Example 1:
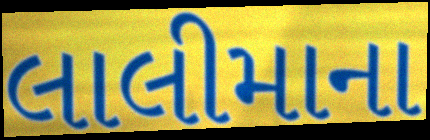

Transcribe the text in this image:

લાલીમાના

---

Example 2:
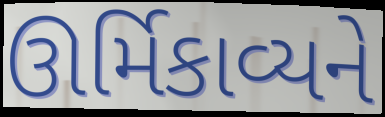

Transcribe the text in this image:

ઊર્મિકાવ્યને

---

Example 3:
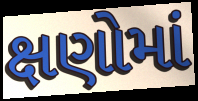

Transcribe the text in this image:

ક્ષણોમાં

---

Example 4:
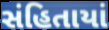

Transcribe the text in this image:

સંહિતાયાં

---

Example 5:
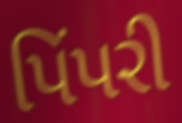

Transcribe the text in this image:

પિંપરી